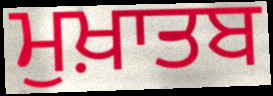
ਮੁਖ਼ਾਤਬ